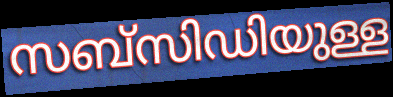
സബ്സിഡിയുള്ള